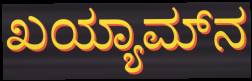
ಖಯ್ಯಾಮ್‌ನ